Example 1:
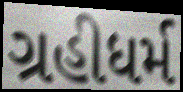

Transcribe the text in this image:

ગ્રહીધર્મ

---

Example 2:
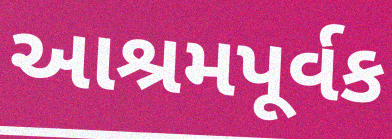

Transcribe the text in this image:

આશ્રમપૂર્વક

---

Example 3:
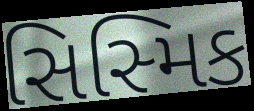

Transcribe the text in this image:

સિસ્મિક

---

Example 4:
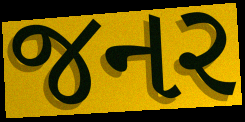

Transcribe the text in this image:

જનર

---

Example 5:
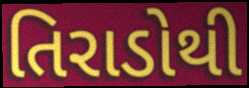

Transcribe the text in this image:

તિરાડોથી